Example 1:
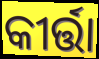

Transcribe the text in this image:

କୀର୍ତ୍ତା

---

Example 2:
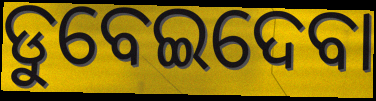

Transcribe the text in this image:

ଡୁବେଇଦେବା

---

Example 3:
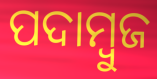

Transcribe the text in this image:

ପଦାମ୍ବୁଜ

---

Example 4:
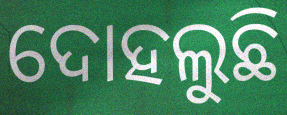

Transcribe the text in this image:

ଦୋହଲୁଛି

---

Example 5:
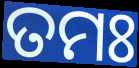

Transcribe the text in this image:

ତମଃ